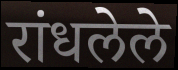
रांधलेले